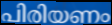
പിരിയണം